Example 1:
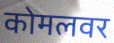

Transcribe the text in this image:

कोमलवर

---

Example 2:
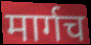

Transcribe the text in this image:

मार्गच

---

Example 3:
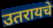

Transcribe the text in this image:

उतरायचे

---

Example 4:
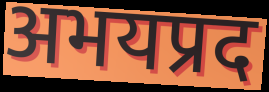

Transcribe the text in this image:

अभयप्रद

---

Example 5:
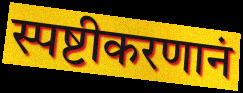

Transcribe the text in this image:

स्पष्टीकरणानं